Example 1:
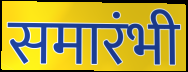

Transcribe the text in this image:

समारंभी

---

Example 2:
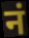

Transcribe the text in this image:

नं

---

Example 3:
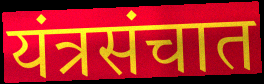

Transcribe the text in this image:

यंत्रसंचात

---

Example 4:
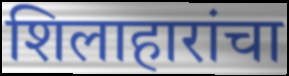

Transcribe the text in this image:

शिलाहारांचा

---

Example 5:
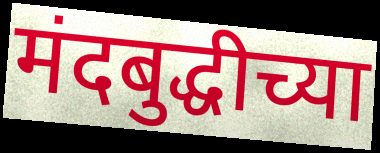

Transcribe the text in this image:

मंदबुद्धीच्या